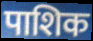
पाशिक